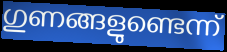
ഗുണങ്ങളുണ്ടെന്ന്